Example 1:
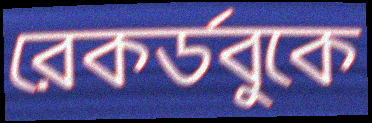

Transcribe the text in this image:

রেকর্ডবুকে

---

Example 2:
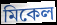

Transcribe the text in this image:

মিকেল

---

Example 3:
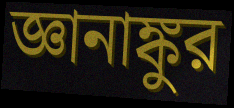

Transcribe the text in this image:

জ্ঞানাঙ্কুর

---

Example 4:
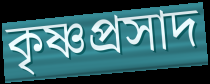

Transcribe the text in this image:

কৃষ্ণপ্রসাদ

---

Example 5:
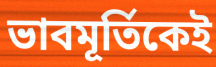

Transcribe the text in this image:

ভাবমূর্তিকেই